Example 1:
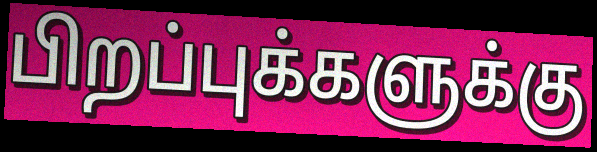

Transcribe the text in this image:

பிறப்புக்களுக்கு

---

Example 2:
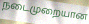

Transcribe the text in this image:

நடைமுறையான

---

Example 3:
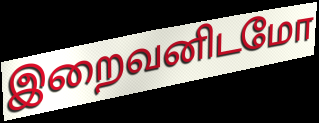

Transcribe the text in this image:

இறைவனிடமோ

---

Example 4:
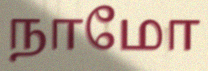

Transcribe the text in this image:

நாமோ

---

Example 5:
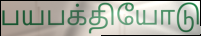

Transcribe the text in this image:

பயபக்தியோடு